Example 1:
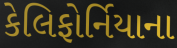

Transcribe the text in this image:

કેલિફોર્નિયાના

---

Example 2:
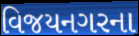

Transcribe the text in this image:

વિજયનગરના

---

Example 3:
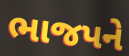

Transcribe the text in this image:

ભાજપને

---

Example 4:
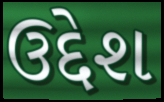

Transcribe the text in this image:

ઉદ્દેશ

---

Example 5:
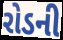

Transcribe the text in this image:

રોડની